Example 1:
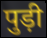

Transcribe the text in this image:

पुड़ी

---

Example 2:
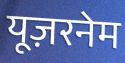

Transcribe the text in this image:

यूज़रनेम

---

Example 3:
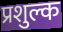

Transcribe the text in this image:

प्रशुल्क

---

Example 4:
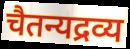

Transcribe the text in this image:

चैतन्यद्रव्य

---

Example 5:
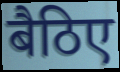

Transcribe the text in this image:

बैठिए